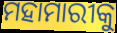
ମହାମାରୀକୁ